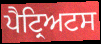
ਪੈਟ੍ਰਿਅਟਸ